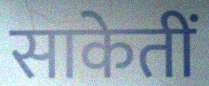
साकेतीं